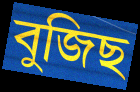
বুজিছ